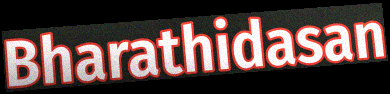
Bharathidasan